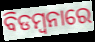
ବିଡମ୍ବନାରେ